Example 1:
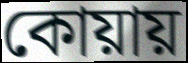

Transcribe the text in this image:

কোয়ায়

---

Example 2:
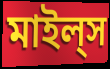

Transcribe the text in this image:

মাইল্‌স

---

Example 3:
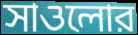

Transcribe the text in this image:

সাওলোর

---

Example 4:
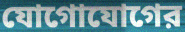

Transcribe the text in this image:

যোগোযোগের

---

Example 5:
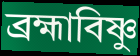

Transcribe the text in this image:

ব্রহ্মাবিষ্ণু